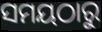
ସମୟଠାରୁ